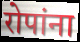
रोपांना